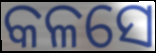
କଳସେ